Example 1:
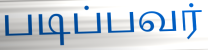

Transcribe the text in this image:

படிப்பவர்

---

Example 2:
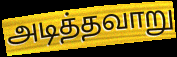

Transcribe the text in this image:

அடித்தவாறு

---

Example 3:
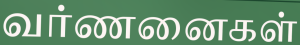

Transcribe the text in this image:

வர்ணனைகள்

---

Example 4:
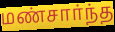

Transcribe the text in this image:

மண்சார்ந்த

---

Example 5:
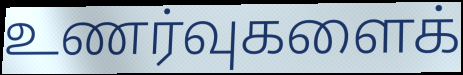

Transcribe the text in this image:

உணர்வுகளைக்